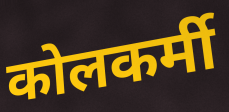
कोलकर्मी